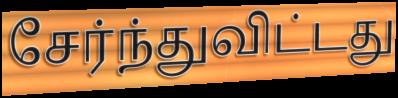
சேர்ந்துவிட்டது